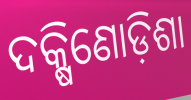
ଦକ୍ଷିଣୋଡ଼ିଶା